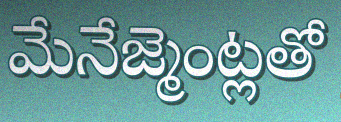
మేనేజ్మెంట్లతో